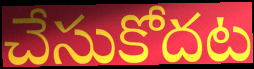
చేసుకోదట